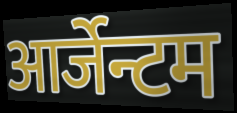
आर्जेन्टम